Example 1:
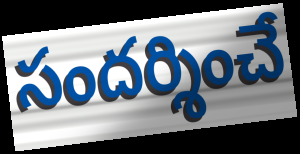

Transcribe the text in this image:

సందర్శించే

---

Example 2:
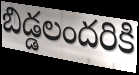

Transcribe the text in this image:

బిడ్డలందరికి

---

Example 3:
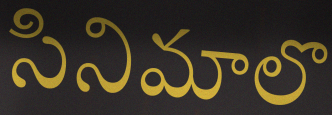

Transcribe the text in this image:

సినిమాలొ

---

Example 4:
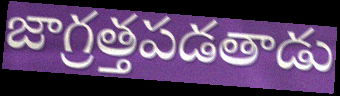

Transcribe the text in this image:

జాగ్రత్తపడతాడు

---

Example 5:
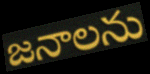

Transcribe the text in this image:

జనాలను